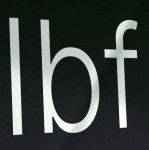
lbf